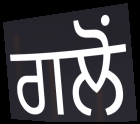
ਗਲੋਂ